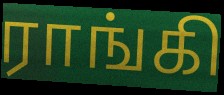
ராங்கி